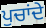
ਪੁਚਾਂਦੇ